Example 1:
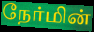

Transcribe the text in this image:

நேர்மின்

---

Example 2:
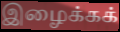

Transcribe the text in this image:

இழைக்கக்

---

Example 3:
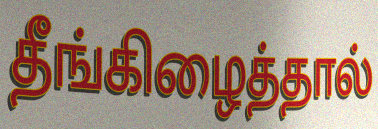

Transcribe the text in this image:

தீங்கிழைத்தால்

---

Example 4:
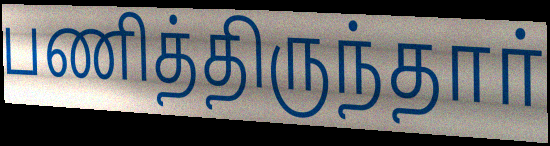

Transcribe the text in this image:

பணித்திருந்தார்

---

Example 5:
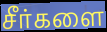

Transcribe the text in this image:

சீர்களை